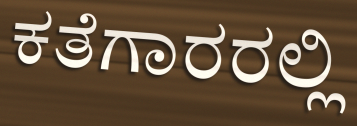
ಕತೆಗಾರರಲ್ಲಿ